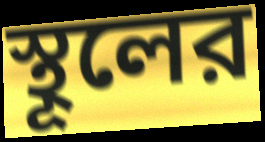
স্থূলের